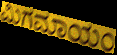
ಮಿಗಮಾಯಂ